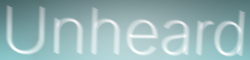
Unheard